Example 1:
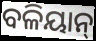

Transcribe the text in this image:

ବଳିୟାନ୍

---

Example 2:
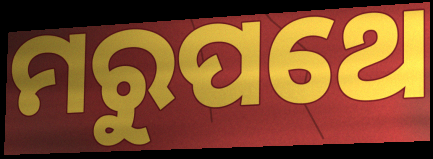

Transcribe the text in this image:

ମରୁପଥେ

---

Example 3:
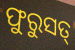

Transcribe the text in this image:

ଫୁରୁସତ୍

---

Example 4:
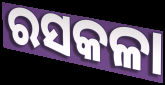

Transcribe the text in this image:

ରସକଳା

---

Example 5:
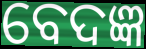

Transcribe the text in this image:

ବେଦଜ୍ଞ